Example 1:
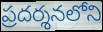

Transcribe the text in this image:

ప్రదర్శనలోని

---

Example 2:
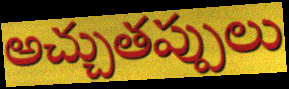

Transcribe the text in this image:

అచ్చుతప్పులు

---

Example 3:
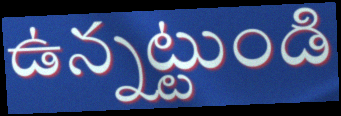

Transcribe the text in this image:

ఉన్నట్టుండి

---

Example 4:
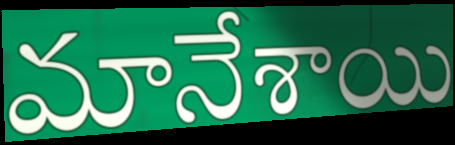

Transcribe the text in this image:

మానేశాయి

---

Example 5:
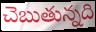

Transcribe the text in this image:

చెబుతున్నది